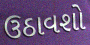
ઉઠાવશો